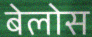
बेलोस